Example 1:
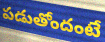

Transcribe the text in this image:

పడుతోందంటే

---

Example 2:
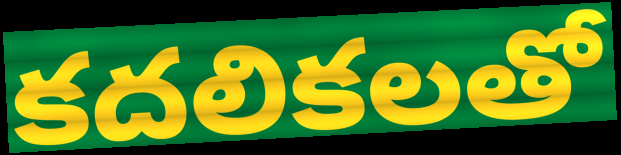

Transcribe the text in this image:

కదలికలతో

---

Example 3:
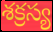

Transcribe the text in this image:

శక్రస్య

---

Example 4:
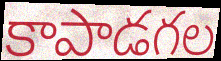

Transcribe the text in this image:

కాపాడగల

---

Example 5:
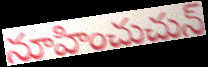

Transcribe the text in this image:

నూహించుచున్